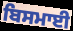
ਬਿਸਮਾਈ